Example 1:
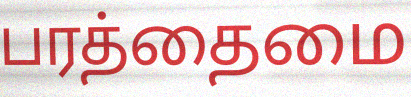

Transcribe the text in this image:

பரத்தைமை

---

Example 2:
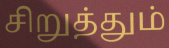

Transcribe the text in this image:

சிறுத்தும்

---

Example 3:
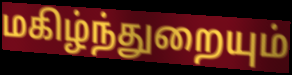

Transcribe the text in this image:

மகிழ்ந்துறையும்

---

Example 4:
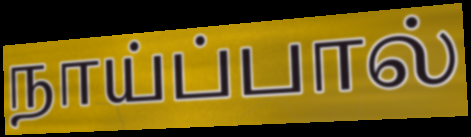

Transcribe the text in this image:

நாய்ப்பால்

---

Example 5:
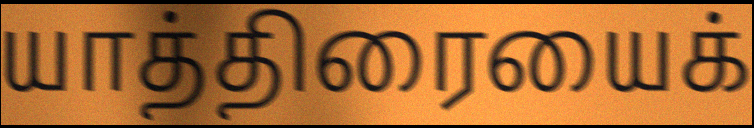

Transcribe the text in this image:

யாத்திரையைக்